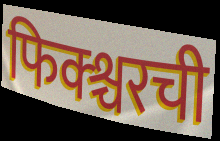
फिक्श्चरची